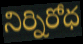
నిర్నిరోధ